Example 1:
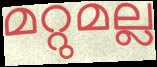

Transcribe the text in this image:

മറ്റുമല്ല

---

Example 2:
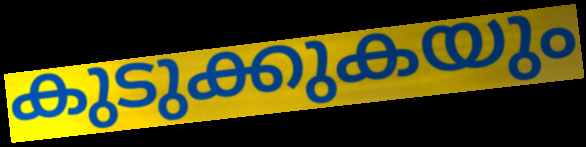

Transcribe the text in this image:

കുടുക്കുകയും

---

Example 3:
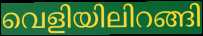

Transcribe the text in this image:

വെളിയിലിറങ്ങി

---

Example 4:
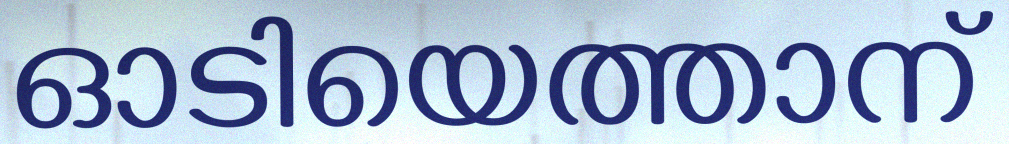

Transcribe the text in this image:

ഓടിയെത്താന്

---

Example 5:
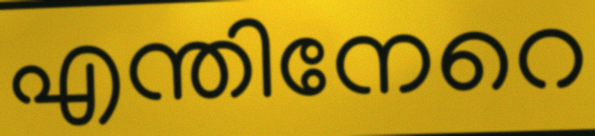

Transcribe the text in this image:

എന്തിനേറെ